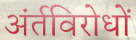
अंर्तविरोधों